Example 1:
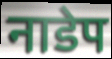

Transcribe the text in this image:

नाडेप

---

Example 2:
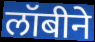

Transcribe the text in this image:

लॉबीने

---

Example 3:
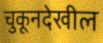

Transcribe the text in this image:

चुकूनदेखील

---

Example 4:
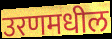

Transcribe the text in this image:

उरणमधील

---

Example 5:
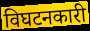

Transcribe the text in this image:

विघटनकारी